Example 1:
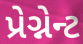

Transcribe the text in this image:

પ્રેગ્નેન્ટ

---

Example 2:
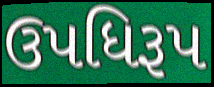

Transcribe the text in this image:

ઉપધિરૂપ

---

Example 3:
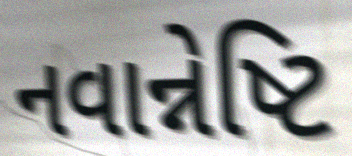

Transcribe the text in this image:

નવાન્નેષ્ટિ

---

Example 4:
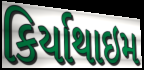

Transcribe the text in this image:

કિર્યાથાઇમ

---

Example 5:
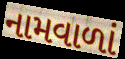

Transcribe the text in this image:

નામવાળાં